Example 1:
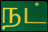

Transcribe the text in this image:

நட்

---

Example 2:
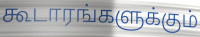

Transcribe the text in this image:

கூடாரங்களுக்கும்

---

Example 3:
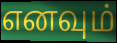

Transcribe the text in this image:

எனவும்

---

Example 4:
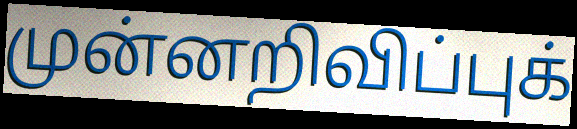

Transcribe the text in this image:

முன்னறிவிப்புக்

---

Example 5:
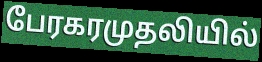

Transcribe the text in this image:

பேரகரமுதலியில்